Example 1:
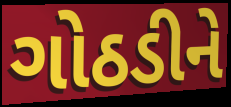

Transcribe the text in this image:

ગોઠડીને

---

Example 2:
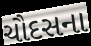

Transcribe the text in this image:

ચૌદસના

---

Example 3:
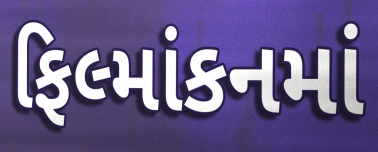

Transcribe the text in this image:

ફિલ્માંકનમાં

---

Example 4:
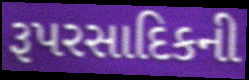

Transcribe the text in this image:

રૂપરસાદિકની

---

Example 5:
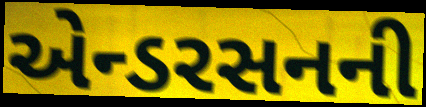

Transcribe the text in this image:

એન્ડરસનની